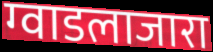
ग्वाडलाजारा